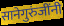
सानेगुरुंजींनी